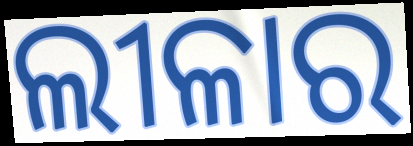
ଲୀଳାର